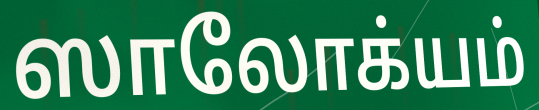
ஸாலோக்யம்